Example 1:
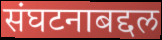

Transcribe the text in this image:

संघटनाबद्दल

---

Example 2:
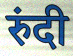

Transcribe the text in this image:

रुंदी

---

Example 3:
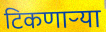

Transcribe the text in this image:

टिकणाऱ्या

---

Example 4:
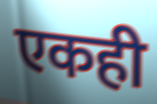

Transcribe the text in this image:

एकही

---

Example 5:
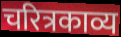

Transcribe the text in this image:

चरित्रकाव्य